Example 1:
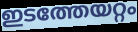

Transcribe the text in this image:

ഇടത്തേയറ്റം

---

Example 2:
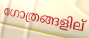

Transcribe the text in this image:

ഗോത്രങ്ങളില്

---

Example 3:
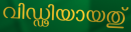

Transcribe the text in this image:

വിഡ്ഢിയായതു്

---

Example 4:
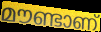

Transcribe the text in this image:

മൗണ്ടാണ്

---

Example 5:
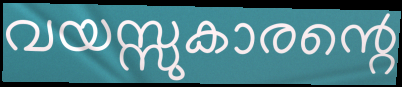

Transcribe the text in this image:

വയസ്സുകാരന്റെ